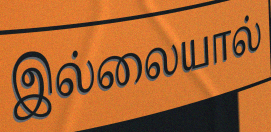
இல்லையால்